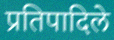
प्रतिपादिले